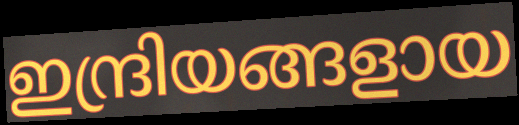
ഇന്ദ്രിയങ്ങളായ